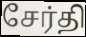
சேர்தி